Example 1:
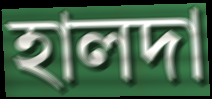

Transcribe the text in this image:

হালদা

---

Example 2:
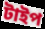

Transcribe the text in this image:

টাইপ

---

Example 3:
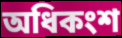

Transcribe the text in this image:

অধিকংশ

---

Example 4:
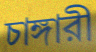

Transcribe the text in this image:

চাঙ্গারী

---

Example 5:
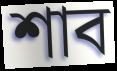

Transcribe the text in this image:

শাব